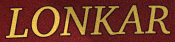
LONKAR